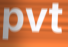
pvt